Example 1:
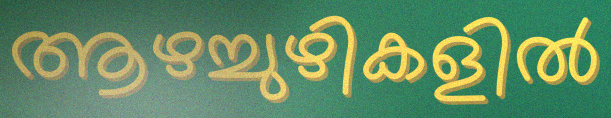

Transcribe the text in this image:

ആഴച്ചുഴികളിൽ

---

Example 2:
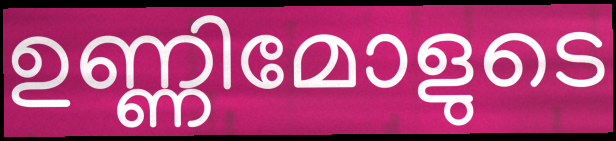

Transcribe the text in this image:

ഉണ്ണിമോളുടെ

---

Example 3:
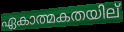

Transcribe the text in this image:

ഏകാത്മകതയില്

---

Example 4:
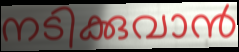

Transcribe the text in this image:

നടിക്കുവാൻ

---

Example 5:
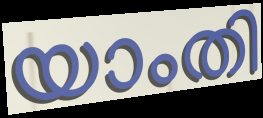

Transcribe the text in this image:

യാംതി